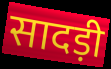
सादड़ी